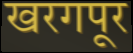
खरगपूर